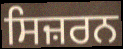
ਸਿਜ਼ਰਨ